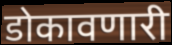
डोकावणारी